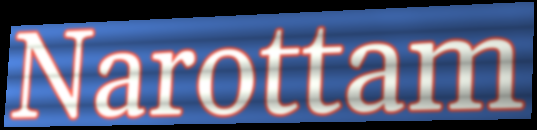
Narottam